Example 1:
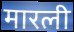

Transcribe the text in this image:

मारली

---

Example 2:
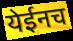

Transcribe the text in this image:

येईनच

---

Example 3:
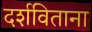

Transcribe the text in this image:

दर्शविताना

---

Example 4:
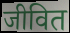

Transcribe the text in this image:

जीवित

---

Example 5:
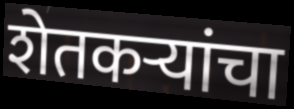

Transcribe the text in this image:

शेतकर्‍यांचा